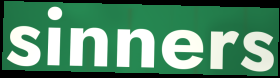
sinners